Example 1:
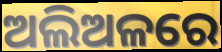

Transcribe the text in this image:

ଅଲିଅଳରେ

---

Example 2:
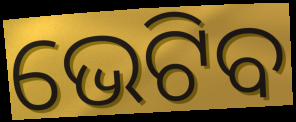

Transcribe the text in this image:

ଭେଟିବ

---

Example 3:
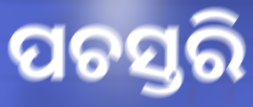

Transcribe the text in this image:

ପଚସ୍ତରି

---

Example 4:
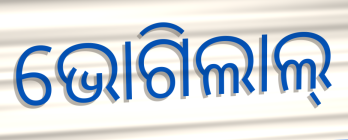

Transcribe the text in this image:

ଭୋଗିଲାଲ୍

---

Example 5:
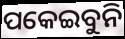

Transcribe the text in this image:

ପକେଇବୁନି